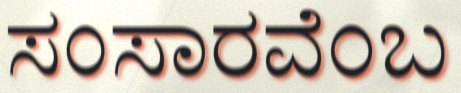
ಸಂಸಾರವೆಂಬ